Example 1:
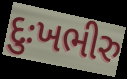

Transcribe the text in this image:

દુઃખભીરુ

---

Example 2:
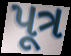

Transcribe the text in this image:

પૂત્ર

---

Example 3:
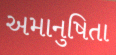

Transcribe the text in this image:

અમાનુષિતા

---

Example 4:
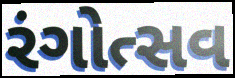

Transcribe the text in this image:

રંગોત્સવ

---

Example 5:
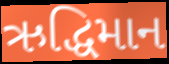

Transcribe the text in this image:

ઋદ્ધિમાન